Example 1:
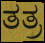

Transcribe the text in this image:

ತತ್ರ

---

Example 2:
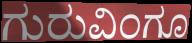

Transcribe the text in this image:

ಗುರುವಿಂಗೂ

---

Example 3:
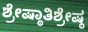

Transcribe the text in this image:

ಶ್ರೇಷ್ಠಾತಿಶ್ರೇಷ್ಠ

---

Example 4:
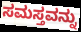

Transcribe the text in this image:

ಸಮಸ್ತವನ್ನು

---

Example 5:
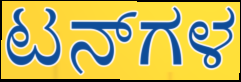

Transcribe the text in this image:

ಟನ್‌ಗಳ